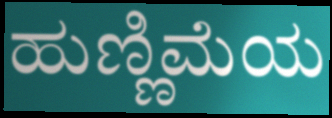
ಹುಣ್ಣಿಮೆಯ